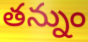
తన్నుం